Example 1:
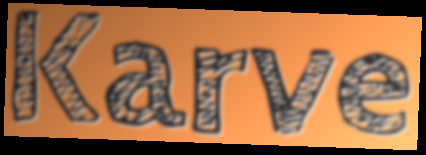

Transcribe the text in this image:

Karve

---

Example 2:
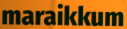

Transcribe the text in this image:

maraikkum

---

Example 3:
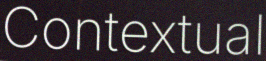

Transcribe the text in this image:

Contextual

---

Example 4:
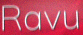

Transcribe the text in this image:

Ravu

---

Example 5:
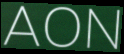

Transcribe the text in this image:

AON